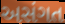
અસંગત